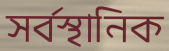
সর্বস্থানিক